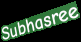
Subhasree